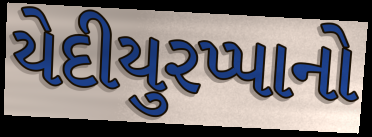
યેદીયુરપ્પાનો